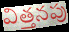
విత్తనపు